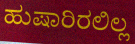
ಹುಷಾರಿರಲಿಲ್ಲ